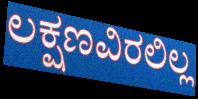
ಲಕ್ಷಣವಿರಲಿಲ್ಲ